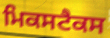
ਮਿਕਸਟੈਕਸ